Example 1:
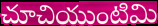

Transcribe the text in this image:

చూచియుంటిమి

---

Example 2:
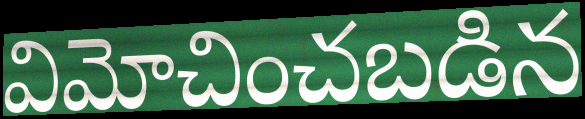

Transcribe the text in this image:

విమోచించబడిన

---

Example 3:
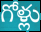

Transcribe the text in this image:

గోళ్లు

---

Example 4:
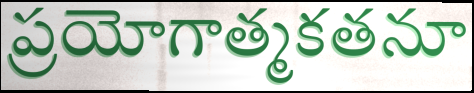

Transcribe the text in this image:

ప్రయోగాత్మకతనూ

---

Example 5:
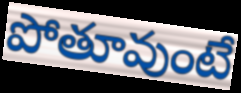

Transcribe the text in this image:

పోతూవుంటే